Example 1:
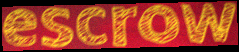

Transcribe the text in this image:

escrow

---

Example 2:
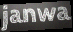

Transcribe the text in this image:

janwa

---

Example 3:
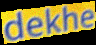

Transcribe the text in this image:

dekhe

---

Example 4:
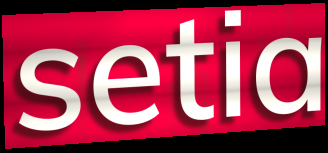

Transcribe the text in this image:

setia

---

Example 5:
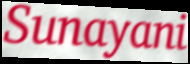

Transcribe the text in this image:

Sunayani